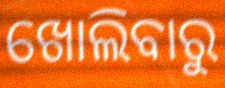
ଖୋଲିବାରୁ